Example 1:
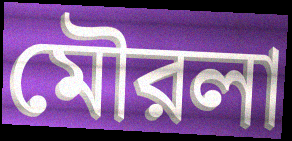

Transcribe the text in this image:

মৌরলা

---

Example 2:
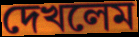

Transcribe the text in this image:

দেখলেম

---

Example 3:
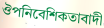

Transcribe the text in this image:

ঔপনিবেশিকতাবাদী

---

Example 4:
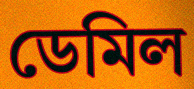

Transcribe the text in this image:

ডেমিল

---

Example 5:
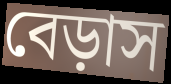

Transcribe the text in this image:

বেড়াস